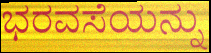
ಭರವಸೆಯನ್ನು